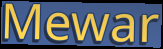
Mewar